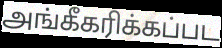
அங்கீகரிக்கப்பட